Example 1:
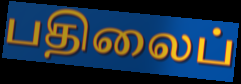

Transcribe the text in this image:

பதிலைப்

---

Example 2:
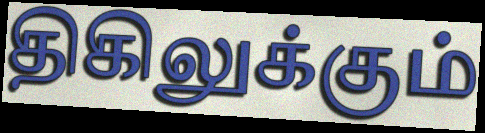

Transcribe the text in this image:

திகிலுக்கும்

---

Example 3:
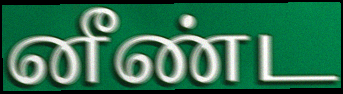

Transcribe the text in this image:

னீண்ட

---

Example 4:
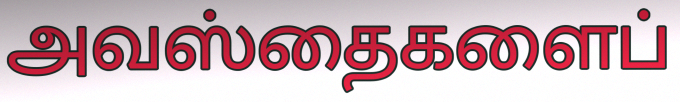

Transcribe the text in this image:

அவஸ்தைகளைப்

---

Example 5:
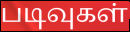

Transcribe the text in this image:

படிவுகள்